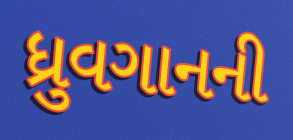
ધ્રુવગાનની